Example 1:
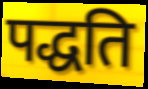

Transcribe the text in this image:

पद्धति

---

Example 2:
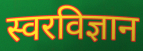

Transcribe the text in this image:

स्वरविज्ञान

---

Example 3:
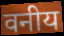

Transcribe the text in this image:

वनीय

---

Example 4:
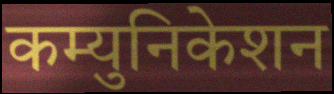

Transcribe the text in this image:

कम्युनिकेशन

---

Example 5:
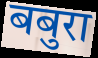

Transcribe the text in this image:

बबुरा